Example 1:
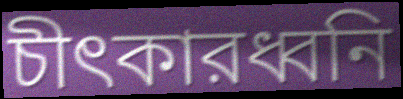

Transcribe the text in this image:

চীৎকারধ্বনি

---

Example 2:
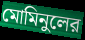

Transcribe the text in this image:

মোমিনুলের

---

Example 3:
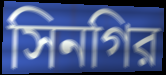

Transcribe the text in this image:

সিনগির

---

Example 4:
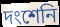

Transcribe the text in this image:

দংশেনি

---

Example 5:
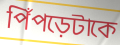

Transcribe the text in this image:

পিঁপড়েটাকে